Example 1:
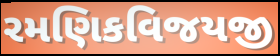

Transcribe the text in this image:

રમણિકવિજયજી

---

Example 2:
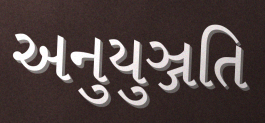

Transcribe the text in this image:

અનુયુઞ્જતિ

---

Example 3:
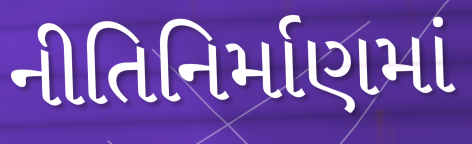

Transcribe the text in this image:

નીતિનિર્માણમાં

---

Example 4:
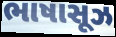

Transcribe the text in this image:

ભાષાસૂઝ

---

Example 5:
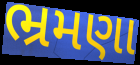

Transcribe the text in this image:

ભ્રમણા